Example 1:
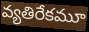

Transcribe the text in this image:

వ్యతిరేకమూ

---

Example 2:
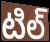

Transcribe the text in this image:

టిల్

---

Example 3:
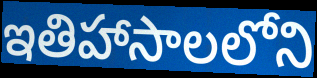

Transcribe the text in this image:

ఇతిహాసాలలోని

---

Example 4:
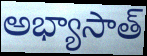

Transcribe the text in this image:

అభ్యాసాత్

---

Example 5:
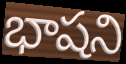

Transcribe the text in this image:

భాషని